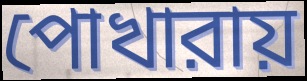
পোখারায়